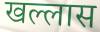
खल्लास